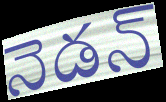
నెడన్